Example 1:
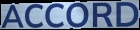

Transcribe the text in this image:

ACCORD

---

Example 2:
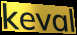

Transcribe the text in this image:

keval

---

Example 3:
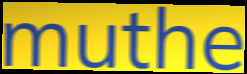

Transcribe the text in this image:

muthe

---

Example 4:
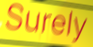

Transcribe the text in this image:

Surely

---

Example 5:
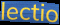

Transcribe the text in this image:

lectio